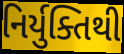
નિર્યુક્તિથી